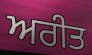
ਅਰੀਤ